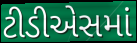
ટીડીએસમાં